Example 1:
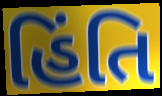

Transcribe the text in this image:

હિંતિ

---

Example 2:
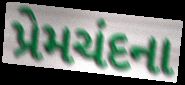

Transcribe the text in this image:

પ્રેમચંદના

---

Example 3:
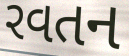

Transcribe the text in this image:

રવતન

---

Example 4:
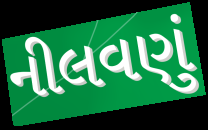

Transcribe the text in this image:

નીલવણું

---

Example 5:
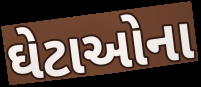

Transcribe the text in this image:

ઘેટાઓના